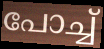
പോച്ച്